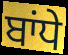
ਬਾਂਧੇ